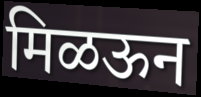
मिळऊन